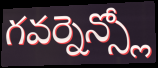
గవర్నెన్స్లో